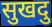
सुखदु